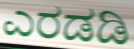
ಎರಡಡಿ